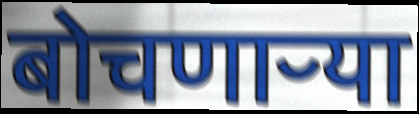
बोचणाऱ्या